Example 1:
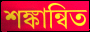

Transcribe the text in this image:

শঙ্কান্বিত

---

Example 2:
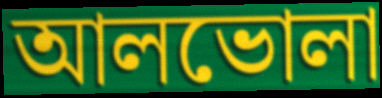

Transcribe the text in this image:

আলভোলা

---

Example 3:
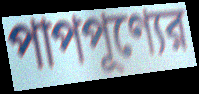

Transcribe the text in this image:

পাপপূণ্যের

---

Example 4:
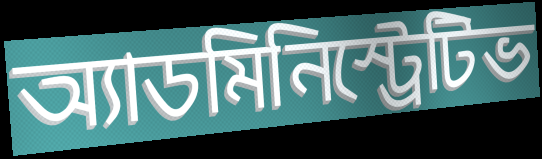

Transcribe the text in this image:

অ্যাডমিনিস্ট্রেটিভ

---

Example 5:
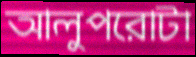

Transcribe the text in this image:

আলুপরোটা